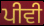
ਪੀਵੀ